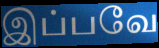
இப்பவே